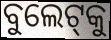
ବୁଲେଟ୍‌କୁ